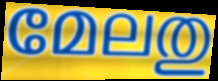
മേലതു